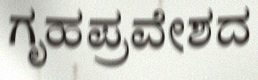
ಗೃಹಪ್ರವೇಶದ